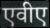
एवीए